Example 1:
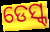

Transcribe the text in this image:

ଡେସ୍କ୍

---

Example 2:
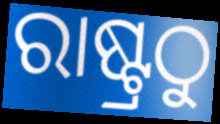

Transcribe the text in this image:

ରାଷ୍ଟ୍ରଠୁ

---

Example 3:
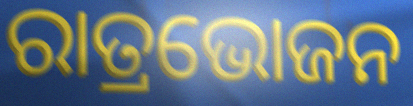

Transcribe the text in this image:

ରାତ୍ରଭୋଜନ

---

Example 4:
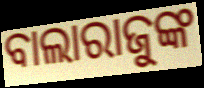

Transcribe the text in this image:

ବାଲାରାଜୁଙ୍କ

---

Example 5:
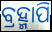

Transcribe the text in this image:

ବ୍ରହ୍ମାପି